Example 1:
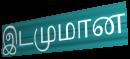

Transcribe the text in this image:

இடமுமான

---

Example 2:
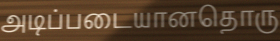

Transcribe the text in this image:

அடிப்படையானதொரு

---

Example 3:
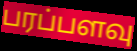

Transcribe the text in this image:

பரப்பளவு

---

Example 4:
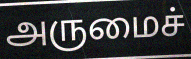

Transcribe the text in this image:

அருமைச்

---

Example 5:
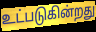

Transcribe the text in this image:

உட்படுகின்றது